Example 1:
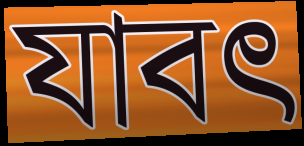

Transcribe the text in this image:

যাবৎ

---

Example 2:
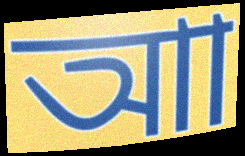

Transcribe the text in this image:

আা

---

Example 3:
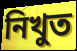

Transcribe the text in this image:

নিখুত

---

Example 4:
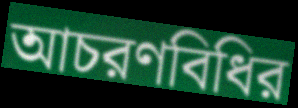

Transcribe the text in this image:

আচরণবিধির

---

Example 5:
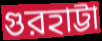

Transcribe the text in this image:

গুরহাট্টা